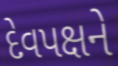
દેવપક્ષને